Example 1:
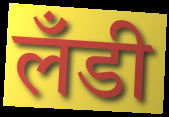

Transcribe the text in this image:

लँडी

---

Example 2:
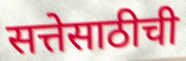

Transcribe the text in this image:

सत्तेसाठीची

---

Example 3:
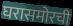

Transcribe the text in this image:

घरासमोरची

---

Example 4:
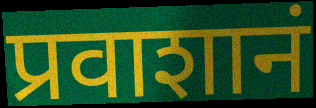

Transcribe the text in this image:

प्रवाशानं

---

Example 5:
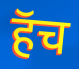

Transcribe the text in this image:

हॅच